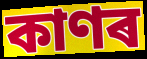
কাণৰ